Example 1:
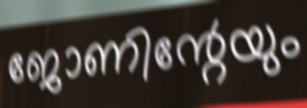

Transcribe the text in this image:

ജോണിന്റേയും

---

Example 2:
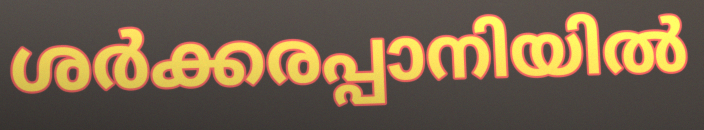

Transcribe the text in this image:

ശർക്കരപ്പാനിയിൽ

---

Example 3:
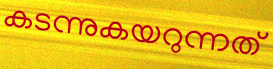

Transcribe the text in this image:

കടന്നുകയറുന്നത്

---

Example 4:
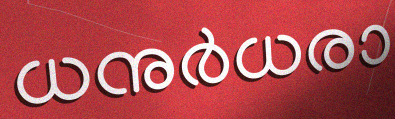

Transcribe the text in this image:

ധനുർധരാ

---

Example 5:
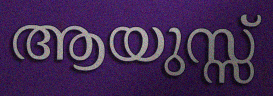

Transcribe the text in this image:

ആയുസ്സ്